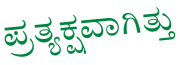
ಪ್ರತ್ಯಕ್ಷವಾಗಿತ್ತು